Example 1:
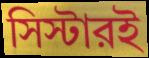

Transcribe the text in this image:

সিস্টারই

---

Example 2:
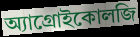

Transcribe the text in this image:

অ্যাগ্রোইকোলজি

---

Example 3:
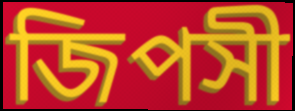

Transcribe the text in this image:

জিপসী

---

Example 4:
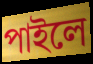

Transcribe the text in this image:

পাইলে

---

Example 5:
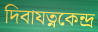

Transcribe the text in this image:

দিবাযত্নকেন্দ্র